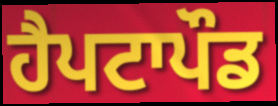
ਹੈਪਟਾਪੌਡ